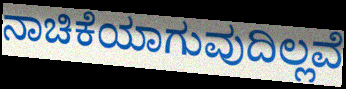
ನಾಚಿಕೆಯಾಗುವುದಿಲ್ಲವೆ